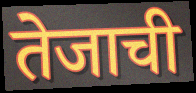
तेजाची